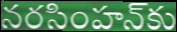
నరసింహన్‌కు